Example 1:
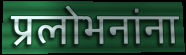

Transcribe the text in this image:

प्रलोभनांना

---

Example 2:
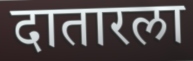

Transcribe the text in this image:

दातारला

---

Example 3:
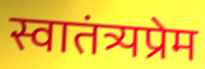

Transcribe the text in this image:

स्वातंत्र्यप्रेम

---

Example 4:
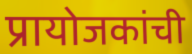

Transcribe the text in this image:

प्रायोजकांची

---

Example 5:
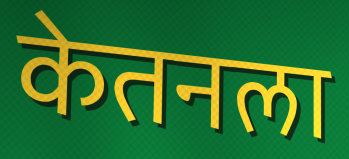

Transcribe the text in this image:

केतनला